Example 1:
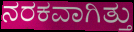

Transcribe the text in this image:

ನರಕವಾಗಿತ್ತು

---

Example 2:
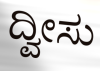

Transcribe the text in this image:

ದ್ವೀಸು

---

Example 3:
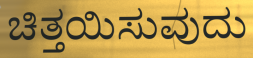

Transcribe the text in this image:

ಚಿತ್ತಯಿಸುವುದು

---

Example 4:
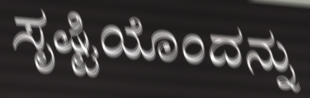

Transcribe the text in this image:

ಸೃಷ್ಟಿಯೊಂದನ್ನು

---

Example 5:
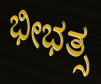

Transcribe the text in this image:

ಭೀಭತ್ಸ